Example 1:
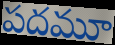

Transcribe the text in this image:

పదమూ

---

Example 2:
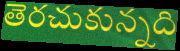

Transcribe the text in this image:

తెరచుకున్నది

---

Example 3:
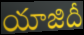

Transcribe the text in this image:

యాజిదీ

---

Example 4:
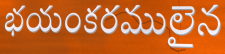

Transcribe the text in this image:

భయంకరములైన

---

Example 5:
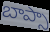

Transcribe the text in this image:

బాప్సా